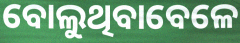
ବୋଲୁଥିବାବେଳେ